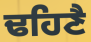
ਢਹਿਣੈ